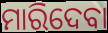
ମାରିଦେବା